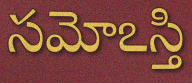
సమోఽస్తి